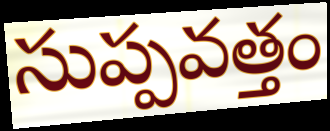
సుప్పవత్తం